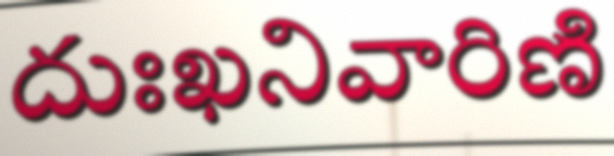
దుఃఖనివారిణి